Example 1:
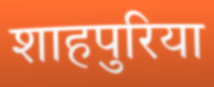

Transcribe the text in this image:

शाहपुरिया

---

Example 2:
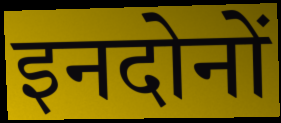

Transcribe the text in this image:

इनदोनों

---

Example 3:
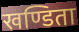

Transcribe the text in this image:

खण्डिता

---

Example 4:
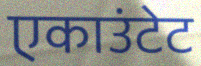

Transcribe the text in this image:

एकाउंटेट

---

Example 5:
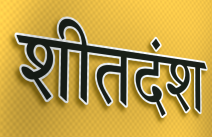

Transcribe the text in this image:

शीतदंश